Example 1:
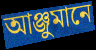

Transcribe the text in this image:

আঞ্জুমানে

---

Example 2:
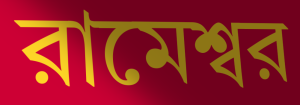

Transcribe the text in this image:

রামেশ্বর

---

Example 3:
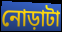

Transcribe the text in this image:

নোড়াটা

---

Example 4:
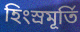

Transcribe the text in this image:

হিংস্রমূর্তি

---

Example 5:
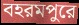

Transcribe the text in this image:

বহরমপুরে